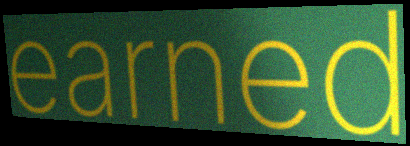
earned